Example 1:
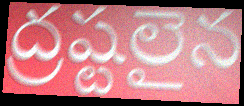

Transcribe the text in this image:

ద్రష్టలైన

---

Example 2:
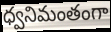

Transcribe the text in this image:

ధ్వనిమంతంగా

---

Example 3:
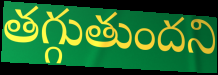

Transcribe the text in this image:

తగ్గుతుందని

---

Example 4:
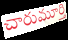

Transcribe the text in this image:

చారుమూర్తి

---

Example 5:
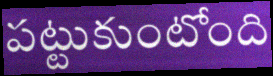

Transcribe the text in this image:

పట్టుకుంటోంది